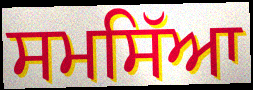
ਸਮਸਿੱਆ